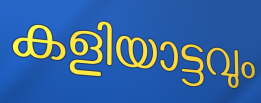
കളിയാട്ടവും